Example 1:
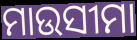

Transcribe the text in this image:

ମାଉସୀମା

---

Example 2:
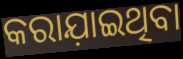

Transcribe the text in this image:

କରାଯ଼ାଇଥିବା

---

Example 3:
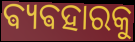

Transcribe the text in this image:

ଵ୍ୟଵହାରକୁ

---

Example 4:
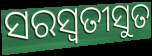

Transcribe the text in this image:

ସରସ୍ୱତୀସୁତ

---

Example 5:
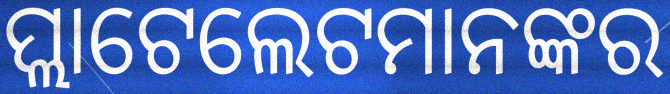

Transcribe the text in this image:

ପ୍ଲାଟେଲେଟମାନଙ୍କର